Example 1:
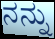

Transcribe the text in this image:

ನನ್ನು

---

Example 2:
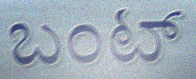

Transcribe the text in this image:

ಬಂಟ್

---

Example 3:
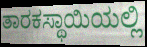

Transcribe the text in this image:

ತಾರಕಸ್ಥಾಯಿಯಲ್ಲಿ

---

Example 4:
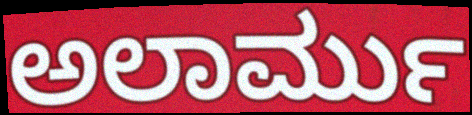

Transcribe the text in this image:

ಅಲಾರ್ಮು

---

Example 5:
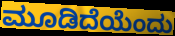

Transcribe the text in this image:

ಮೂಡಿದೆಯೆಂದು